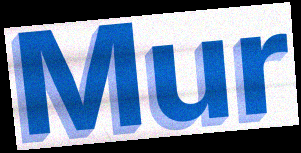
Mur